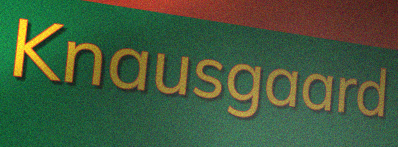
Knausgaard